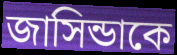
জাসিন্ডাকে